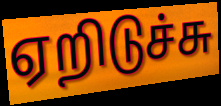
ஏறிடுச்சு